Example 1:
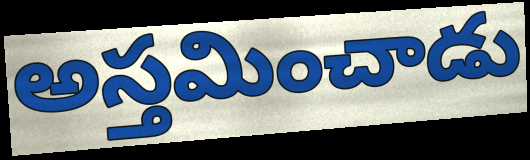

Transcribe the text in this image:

అస్తమించాడు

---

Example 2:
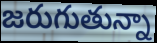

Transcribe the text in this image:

జరుగుతున్నా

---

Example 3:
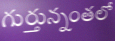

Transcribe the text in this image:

గుర్తున్నంతలో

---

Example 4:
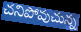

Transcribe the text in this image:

చనిపోవుచున్న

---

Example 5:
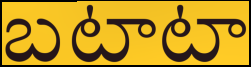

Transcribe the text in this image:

బటాటా